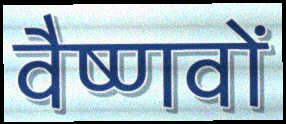
वैष्णवों